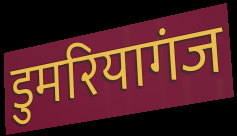
डुमरियागंज